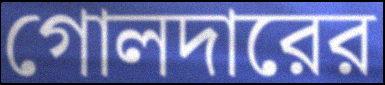
গোলদারের